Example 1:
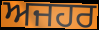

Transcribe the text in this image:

ਅਜਹਰ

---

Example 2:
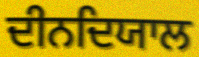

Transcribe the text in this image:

ਦੀਨਦਿਯਾਲ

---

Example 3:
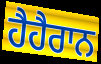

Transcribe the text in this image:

ਹੈਹੈਰਾਨ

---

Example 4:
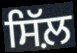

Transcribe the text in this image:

ਸਿੱਲ਼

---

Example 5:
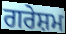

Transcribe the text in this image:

ਗਰੇਸ਼ਮ